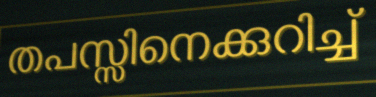
തപസ്സിനെക്കുറിച്ച്